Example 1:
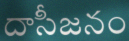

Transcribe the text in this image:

దాసీజనం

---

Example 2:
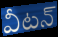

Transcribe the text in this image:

వీటన్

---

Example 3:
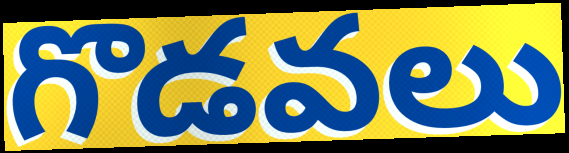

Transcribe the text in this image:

గొడవలు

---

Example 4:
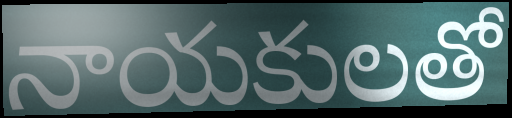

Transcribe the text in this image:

నాయకులతో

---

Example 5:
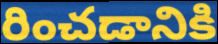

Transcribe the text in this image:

రించడానికి